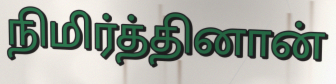
நிமிர்த்தினான்